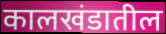
कालखंडातील